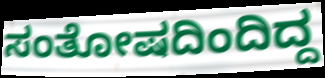
ಸಂತೋಷದಿಂದಿದ್ದ